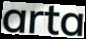
arta